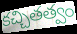
కచ్చితత్వం